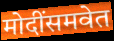
मोदींसमवेत